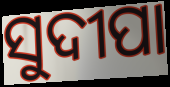
ସୁଦୀପା